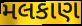
મલકાણ